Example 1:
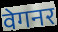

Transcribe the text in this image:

वेगनर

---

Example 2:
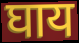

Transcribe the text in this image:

घाय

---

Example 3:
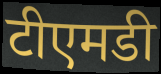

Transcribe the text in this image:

टीएमडी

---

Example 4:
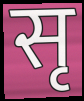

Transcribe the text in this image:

सृ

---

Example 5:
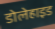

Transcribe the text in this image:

डोलेहाइड